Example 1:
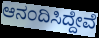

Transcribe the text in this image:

ಆನಂದಿಸಿದ್ದೇವೆ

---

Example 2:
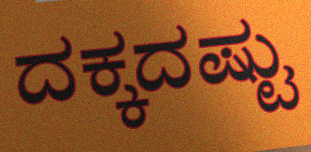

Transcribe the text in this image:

ದಕ್ಕದಷ್ಟು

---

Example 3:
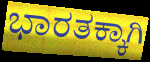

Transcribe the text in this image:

ಭಾರತಕ್ಕಾಗಿ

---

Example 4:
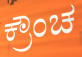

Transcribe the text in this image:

ಕ್ರೌಂಚ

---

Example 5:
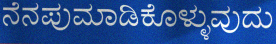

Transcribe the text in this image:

ನೆನಪುಮಾಡಿಕೊಳ್ಳುವುದು